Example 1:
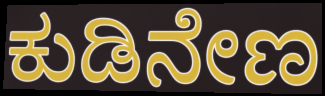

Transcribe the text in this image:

ಕುಡಿನೇಣ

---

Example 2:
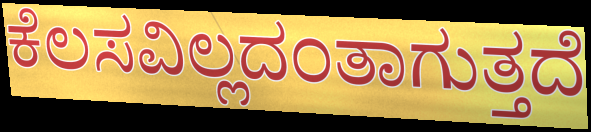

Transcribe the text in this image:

ಕೆಲಸವಿಲ್ಲದಂತಾಗುತ್ತದೆ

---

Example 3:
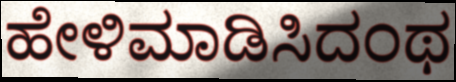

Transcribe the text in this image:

ಹೇಳಿಮಾಡಿಸಿದಂಥ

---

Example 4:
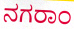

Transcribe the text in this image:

ನಗರಾಂ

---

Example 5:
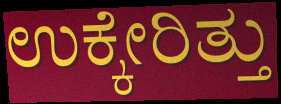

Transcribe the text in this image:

ಉಕ್ಕೇರಿತ್ತು